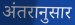
अंतरानुसार